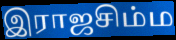
இராஜசிம்ம